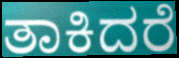
ತಾಕಿದರೆ